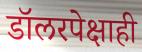
डॉलरपेक्षाही